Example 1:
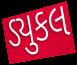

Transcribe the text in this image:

ડ્યુકલ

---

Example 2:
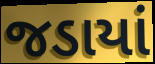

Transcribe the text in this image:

જડાયાં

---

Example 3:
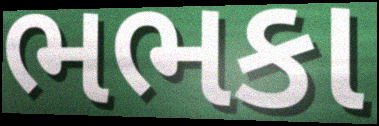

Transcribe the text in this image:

ભભકા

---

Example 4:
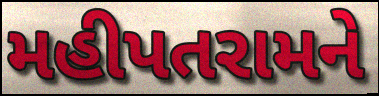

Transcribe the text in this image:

મહીપતરામને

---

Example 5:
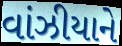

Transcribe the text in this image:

વાંઝીયાને